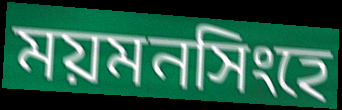
ময়মনসিংহে